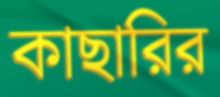
কাছারির